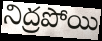
నిద్రపోయి